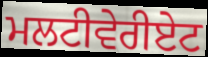
ਮਲਟੀਵੇਰੀਏਟ